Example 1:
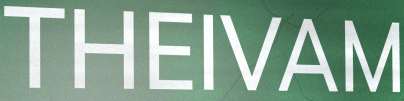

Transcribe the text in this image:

THEIVAM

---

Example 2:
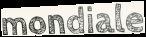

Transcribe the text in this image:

mondiale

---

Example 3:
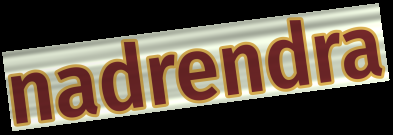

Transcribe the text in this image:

nadrendra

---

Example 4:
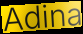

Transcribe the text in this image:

Adina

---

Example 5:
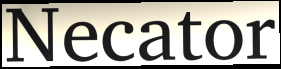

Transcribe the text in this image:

Necator